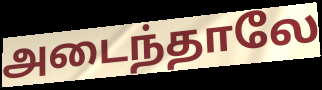
அடைந்தாலே